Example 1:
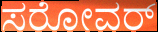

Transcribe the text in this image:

ಸರೋವರ್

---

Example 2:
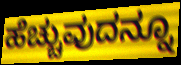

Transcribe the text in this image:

ಹೆಚ್ಚುವುದನ್ನೂ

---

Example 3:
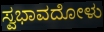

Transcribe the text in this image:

ಸ್ವಭಾವದೋಳು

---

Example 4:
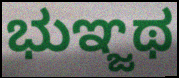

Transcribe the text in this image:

ಭುಞ್ಜಥ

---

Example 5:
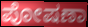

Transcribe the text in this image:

ಪೋಷಣಾ